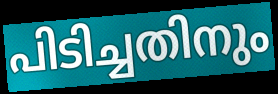
പിടിച്ചതിനും